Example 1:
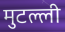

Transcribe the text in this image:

मुटल्ली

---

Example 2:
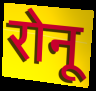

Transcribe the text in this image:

रोनू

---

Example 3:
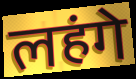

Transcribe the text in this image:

लहंगे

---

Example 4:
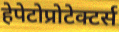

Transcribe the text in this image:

हेपेटोप्रोटेक्टर्स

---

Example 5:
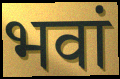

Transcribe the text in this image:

भवां